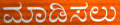
ಮಾಡಿಸಲು